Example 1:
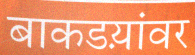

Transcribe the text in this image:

बाकडय़ांवर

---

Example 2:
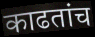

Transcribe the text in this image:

काढतांच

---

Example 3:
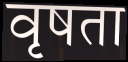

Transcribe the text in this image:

वृषता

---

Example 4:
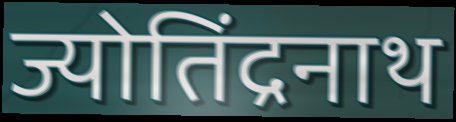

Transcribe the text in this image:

ज्योतिंद्रनाथ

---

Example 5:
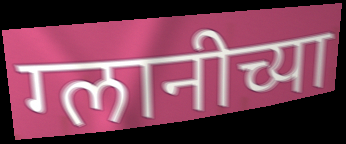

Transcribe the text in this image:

ग्लानीच्या